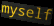
myself